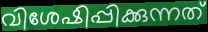
വിശേഷിപ്പിക്കുന്നത്